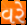
વરે